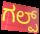
ಗಲ್ಪ್